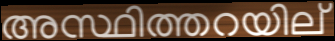
അസ്ഥിത്തറയില്